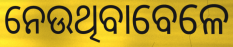
ନେଉଥିବାବେଳେ